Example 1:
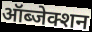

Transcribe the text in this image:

ऑब्जेक्शन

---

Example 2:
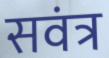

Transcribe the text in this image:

सवंत्र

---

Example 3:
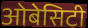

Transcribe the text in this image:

ओबेसिटी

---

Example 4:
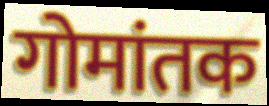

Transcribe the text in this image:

गोमांतक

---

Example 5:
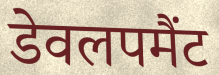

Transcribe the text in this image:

डेवलपमैंट